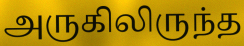
அருகிலிருந்த